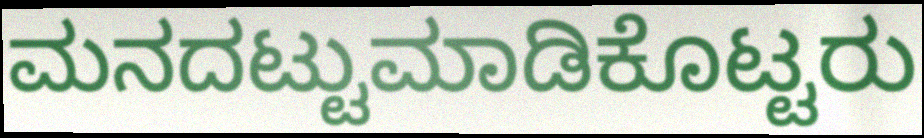
ಮನದಟ್ಟುಮಾಡಿಕೊಟ್ಟರು